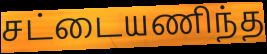
சட்டையணிந்த